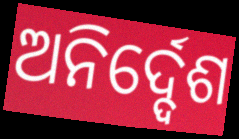
ଅନିର୍ଦ୍ଦେଶ